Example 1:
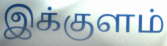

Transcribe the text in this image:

இக்குளம்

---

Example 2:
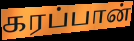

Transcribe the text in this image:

கரப்பான்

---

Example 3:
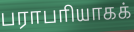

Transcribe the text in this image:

பராபரியாகக்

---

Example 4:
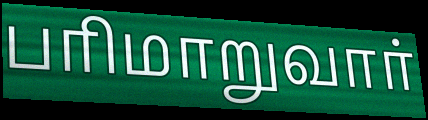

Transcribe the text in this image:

பரிமாறுவார்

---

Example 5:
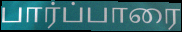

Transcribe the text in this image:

பார்ப்பாரை